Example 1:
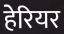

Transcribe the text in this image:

हेरियर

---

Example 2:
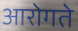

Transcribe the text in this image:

आरोगते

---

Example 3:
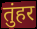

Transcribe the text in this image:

तुंहर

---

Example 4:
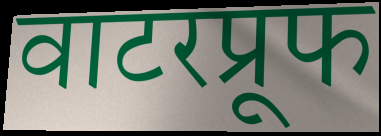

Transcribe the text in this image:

वाटरप्रूफ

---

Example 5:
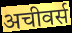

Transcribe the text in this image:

अचीवर्स